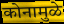
कोनामुळे